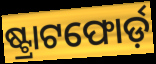
ଷ୍ଟ୍ରାଟଫୋର୍ଡ଼